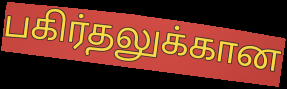
பகிர்தலுக்கான